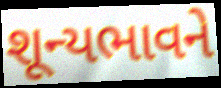
શૂન્યભાવને